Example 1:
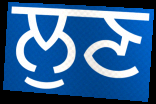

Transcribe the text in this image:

ਲੁਣ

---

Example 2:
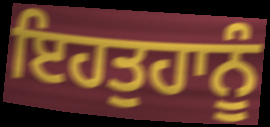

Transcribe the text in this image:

ਇਹਤੁਹਾਨੂੰ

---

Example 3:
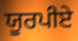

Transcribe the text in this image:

ਯੂਰਪੀਏ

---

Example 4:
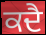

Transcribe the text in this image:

ਕਦੈ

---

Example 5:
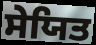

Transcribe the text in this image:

ਸੇਯਿਤ